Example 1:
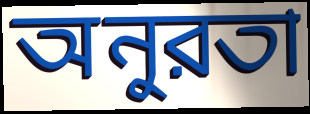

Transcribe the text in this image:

অনুরতা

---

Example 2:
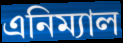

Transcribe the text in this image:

এনিম্যাল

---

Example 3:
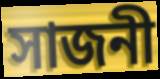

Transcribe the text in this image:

সাজনী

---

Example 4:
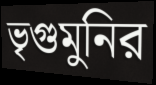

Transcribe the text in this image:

ভৃগুমুনির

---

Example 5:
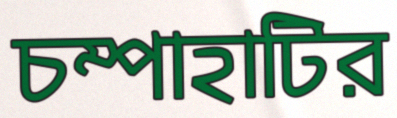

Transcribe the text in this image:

চম্পাহাটির